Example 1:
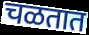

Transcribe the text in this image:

चळतात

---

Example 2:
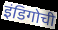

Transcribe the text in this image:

इंडिगोची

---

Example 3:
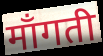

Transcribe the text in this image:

माँगती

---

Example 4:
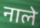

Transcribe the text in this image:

नाले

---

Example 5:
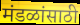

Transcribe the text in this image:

मंडळांसाठी